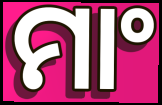
ମାଂ